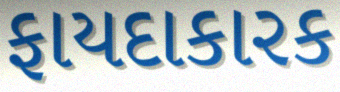
ફાયદાકારક